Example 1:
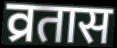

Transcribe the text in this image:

व्रतास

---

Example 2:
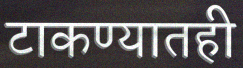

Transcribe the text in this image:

टाकण्यातही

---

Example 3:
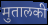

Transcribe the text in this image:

मुतालकी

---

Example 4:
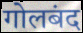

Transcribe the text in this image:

गोलबंद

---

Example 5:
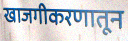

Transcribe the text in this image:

खाजगीकरणातून